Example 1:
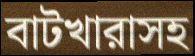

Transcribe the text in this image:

বাটখারাসহ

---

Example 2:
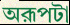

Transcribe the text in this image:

অরূপটা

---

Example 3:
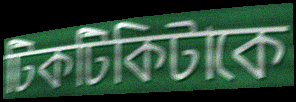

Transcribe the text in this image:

টিকটিকিটাকে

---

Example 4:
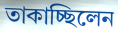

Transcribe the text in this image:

তাকাচ্ছিলেন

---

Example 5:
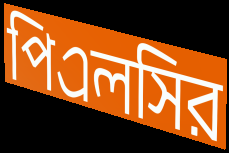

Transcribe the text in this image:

পিএলসির